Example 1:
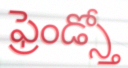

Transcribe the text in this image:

ఫ్రెండ్స్తో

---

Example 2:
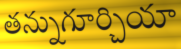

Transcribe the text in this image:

తన్నుగూర్చియా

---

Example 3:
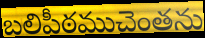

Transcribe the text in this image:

బలిపీఠముచెంతను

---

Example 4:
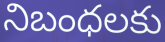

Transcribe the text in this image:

నిబంధలకు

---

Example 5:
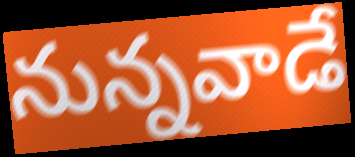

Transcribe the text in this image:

నున్నవాడే